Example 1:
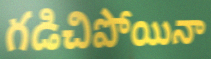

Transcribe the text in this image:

గడిచిపోయినా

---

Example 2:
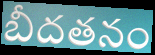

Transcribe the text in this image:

బీదతనం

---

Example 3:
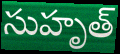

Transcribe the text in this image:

సుహృత్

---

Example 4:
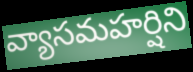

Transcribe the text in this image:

వ్యాసమహర్షిని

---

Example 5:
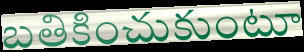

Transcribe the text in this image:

బతికించుకుంటూ